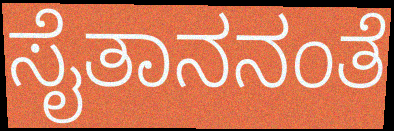
ಸೈತಾನನಂತೆ